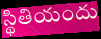
స్థితియందు